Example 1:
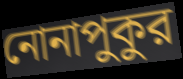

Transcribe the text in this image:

নোনাপুকুর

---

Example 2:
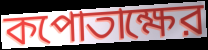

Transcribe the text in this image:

কপোতাক্ষের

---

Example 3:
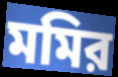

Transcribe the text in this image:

মমির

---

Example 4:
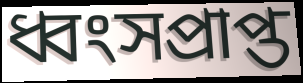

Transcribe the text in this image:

ধ্বংসপ্রাপ্ত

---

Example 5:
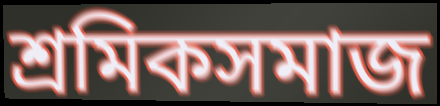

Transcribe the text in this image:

শ্রমিকসমাজ